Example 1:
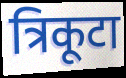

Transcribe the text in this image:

त्रिकूटा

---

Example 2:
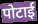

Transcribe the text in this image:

पोटाई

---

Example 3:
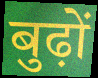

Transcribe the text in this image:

बुढ़ों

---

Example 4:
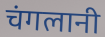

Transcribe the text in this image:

चंगलानी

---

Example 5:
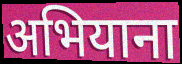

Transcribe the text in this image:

अभियाना